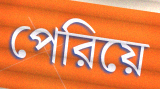
পেরিয়ে